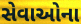
સેવાઓના